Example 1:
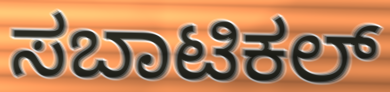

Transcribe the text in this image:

ಸಬಾಟಿಕಲ್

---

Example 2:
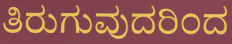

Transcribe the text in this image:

ತಿರುಗುವುದರಿಂದ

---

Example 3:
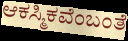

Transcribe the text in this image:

ಆಕಸ್ಮಿಕವೆಂಬಂತೆ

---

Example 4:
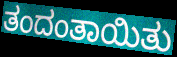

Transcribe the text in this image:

ತಂದಂತಾಯಿತು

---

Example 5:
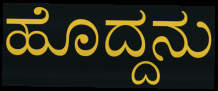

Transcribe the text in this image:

ಹೊದ್ದನು